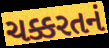
ચક્કરતનં